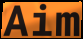
Aim